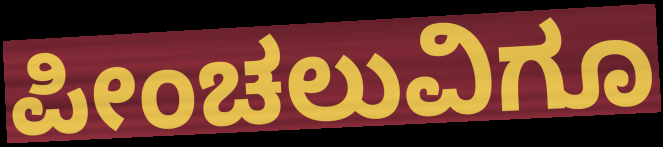
ಪೀಂಚಲುವಿಗೂ